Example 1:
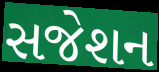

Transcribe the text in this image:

સજેશન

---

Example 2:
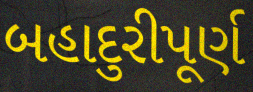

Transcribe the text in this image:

બહાદુરીપૂર્ણ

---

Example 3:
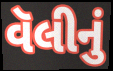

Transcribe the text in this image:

વૅલીનું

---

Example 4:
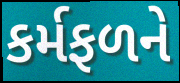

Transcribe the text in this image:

કર્મફળને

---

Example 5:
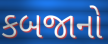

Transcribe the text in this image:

કબજાનો